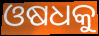
ଓଷଧକୁ